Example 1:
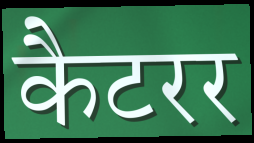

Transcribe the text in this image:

कैटरर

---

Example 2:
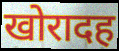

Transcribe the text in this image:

खोरादह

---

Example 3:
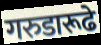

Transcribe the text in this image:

गरुडारूढे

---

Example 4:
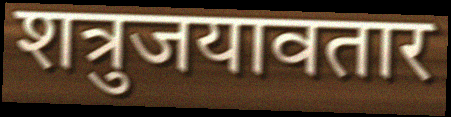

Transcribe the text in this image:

शत्रुजयावतार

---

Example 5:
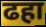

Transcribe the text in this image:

ढहा